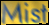
Mist